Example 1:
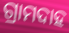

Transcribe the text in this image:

ଗ୍ରାମଦାହ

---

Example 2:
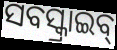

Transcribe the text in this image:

ସବସ୍କ୍ରାଇବ୍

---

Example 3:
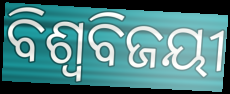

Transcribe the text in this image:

ବିଶ୍ବବିଜୟୀ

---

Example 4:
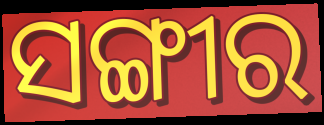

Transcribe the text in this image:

ସଙ୍ଗୀର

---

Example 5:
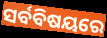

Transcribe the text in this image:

ସର୍ବବିଷୟରେ